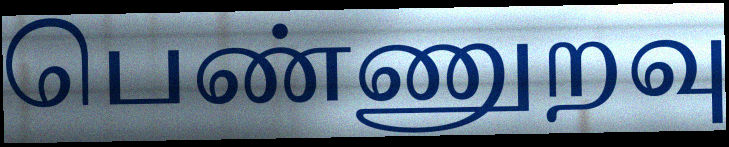
பெண்ணுறவு